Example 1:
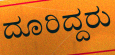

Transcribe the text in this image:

ದೂರಿದ್ದರು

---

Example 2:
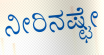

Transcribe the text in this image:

ನೀರಿನಷ್ಟೇ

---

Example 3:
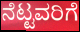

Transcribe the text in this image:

ನೆಟ್ಟವರಿಗೆ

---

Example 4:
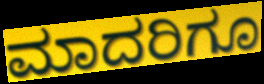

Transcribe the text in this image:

ಮಾದರಿಗೂ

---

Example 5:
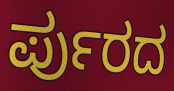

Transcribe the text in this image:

ರ್ಪುರದ